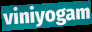
viniyogam